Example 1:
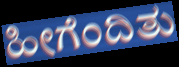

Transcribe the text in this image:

ಹೀಗೆಂದಿತು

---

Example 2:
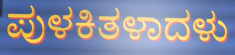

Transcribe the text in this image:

ಪುಳಕಿತಳಾದಳು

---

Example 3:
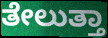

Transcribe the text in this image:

ತೇಲುತ್ತಾ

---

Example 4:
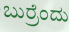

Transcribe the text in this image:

ಬುರ್ರೆಂದು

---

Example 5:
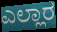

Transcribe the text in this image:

ಎಲ್ಲಾರ